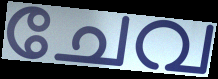
ചേവ